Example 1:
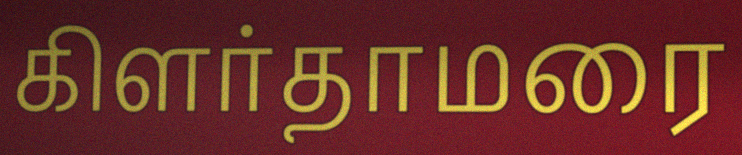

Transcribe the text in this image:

கிளர்தாமரை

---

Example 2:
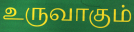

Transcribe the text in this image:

உருவாகும்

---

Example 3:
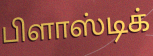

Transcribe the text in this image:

பிளாஸ்டிக்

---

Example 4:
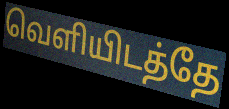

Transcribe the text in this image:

வெளியிடத்தே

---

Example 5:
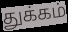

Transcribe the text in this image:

துக்கம்